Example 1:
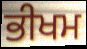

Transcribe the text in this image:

ਭੀਖਮ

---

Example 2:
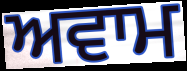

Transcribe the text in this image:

ਅਵਾਮ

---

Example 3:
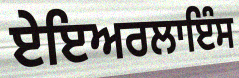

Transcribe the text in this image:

ਏਇਅਰਲਾਇੰਸ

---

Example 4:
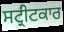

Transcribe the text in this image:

ਸਟ੍ਰੀਟਕਾਰ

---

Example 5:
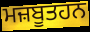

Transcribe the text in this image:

ਮਜ਼ਬੂਤਹਨ